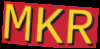
MKR